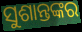
ସୁଶାନ୍ତଙ୍କର